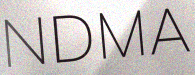
NDMA